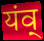
यंव्